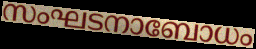
സംഘടനാബോധം